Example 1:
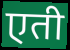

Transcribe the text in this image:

एती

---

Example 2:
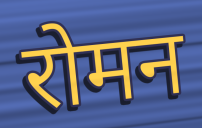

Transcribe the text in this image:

रोमन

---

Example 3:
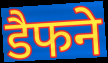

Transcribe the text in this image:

डैफने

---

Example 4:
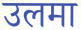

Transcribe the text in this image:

उलमा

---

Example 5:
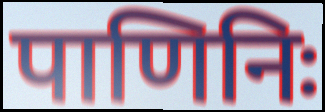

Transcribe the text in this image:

पाणिनिः